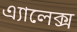
এ্যালেক্স